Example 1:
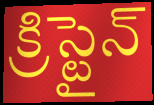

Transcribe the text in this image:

క్రిస్టైన్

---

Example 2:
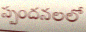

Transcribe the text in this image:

స్పందనలలో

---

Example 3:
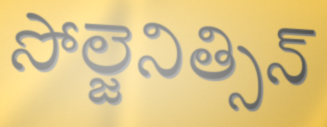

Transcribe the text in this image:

సోల్జెనిత్సిన్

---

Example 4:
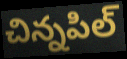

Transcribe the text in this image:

చిన్నపిల్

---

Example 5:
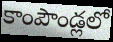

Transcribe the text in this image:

కాంపౌండ్లలో